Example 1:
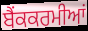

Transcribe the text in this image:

ਬੈਂਕਕਰਮੀਆਂ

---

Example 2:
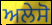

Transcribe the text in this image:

ਅਲੇਸੋ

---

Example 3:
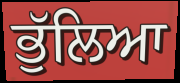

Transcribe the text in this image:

ਭੁੱਲਿਆ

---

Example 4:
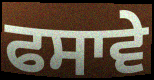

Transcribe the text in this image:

ਫਸਾਵੇ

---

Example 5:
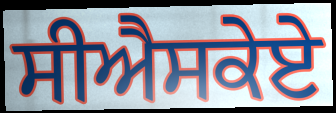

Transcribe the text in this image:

ਸੀਐਸਕੇਏ